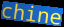
chine